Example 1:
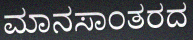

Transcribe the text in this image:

ಮಾನಸಾಂತರದ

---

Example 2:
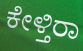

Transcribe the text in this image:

ಕೇಳ್ತಿರಾ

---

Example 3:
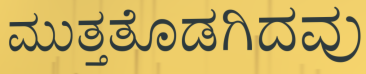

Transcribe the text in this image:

ಮುತ್ತತೊಡಗಿದವು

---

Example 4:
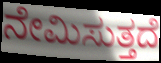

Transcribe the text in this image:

ನೇಮಿಸುತ್ತದೆ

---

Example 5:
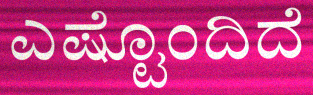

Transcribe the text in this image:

ಎಷ್ಟೊಂದಿದೆ